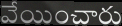
వేయించారు